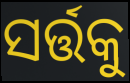
ସର୍ତ୍ତକୁ